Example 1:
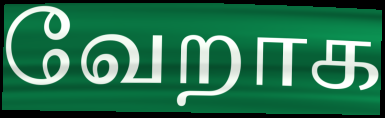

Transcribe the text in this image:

வேறாக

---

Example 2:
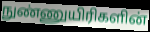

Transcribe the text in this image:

நுண்ணுயிரிகளின்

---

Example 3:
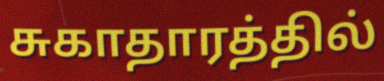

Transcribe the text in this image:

சுகாதாரத்தில்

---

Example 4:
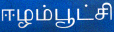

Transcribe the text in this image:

ஈழம்பூட்சி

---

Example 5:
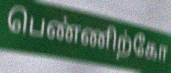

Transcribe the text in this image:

பெண்ணிற்கோ